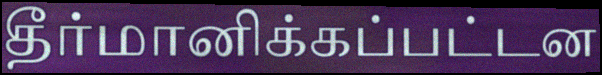
தீர்மானிக்கப்பட்டன